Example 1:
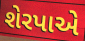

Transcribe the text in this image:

શેરપાએ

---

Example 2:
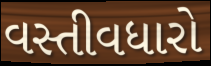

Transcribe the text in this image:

વસ્તીવધારો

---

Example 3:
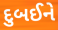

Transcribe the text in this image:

દુબઈને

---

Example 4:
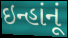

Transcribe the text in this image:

ઇન્હાંનૂં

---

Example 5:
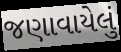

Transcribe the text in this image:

જણાવાયેલું